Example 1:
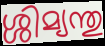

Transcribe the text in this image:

ശ്ശിമ്യന്തു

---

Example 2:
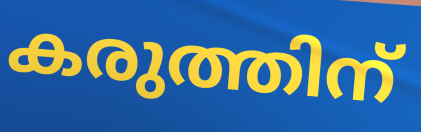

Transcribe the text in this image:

കരുത്തിന്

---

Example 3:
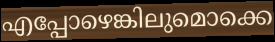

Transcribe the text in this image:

എപ്പോഴെങ്കിലുമൊക്കെ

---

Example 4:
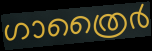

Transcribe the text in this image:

ഗാത്രൈർ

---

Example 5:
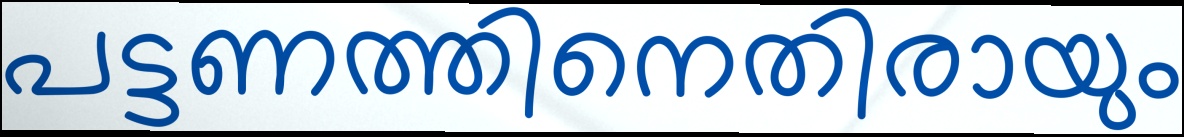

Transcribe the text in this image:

പട്ടണത്തിനെതിരായും